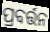
ପ୍ରବର୍ତ୍ତନ